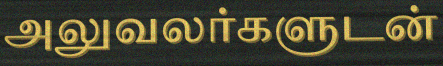
அலுவலர்களுடன்